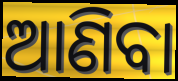
ଆଣିବା